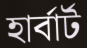
হাৰ্বাৰ্ট